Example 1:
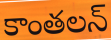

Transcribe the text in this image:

కాంతలన్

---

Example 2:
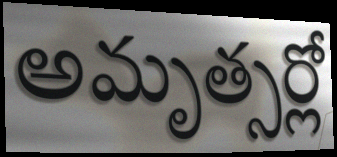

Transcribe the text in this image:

అమృత్సర్లో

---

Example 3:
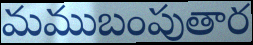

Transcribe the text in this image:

మముబంపుతార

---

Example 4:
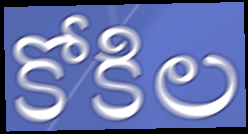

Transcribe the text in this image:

కోకిల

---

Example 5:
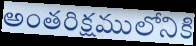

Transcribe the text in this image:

అంతరిక్షములోనికి